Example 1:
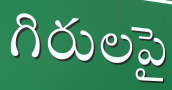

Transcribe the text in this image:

గిరులపై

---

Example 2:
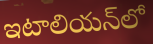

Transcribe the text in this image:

ఇటాలియన్‌లో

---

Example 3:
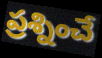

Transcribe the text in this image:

ప్రశ్నించే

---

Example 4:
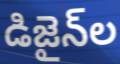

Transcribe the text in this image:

డిజైన్‌ల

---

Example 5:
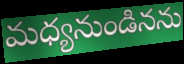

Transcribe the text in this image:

మధ్యనుండినను